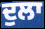
ਦੁਲਾ